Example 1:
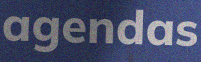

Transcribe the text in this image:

agendas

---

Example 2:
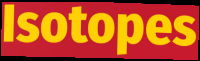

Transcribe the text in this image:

Isotopes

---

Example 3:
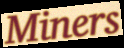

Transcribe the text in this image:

Miners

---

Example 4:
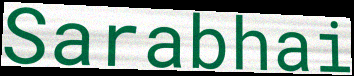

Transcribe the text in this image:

Sarabhai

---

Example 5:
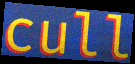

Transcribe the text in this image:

cull